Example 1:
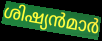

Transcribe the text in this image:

ശിഷ്യൻമാർ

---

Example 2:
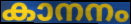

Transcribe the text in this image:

കാനനം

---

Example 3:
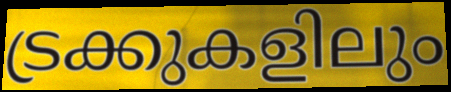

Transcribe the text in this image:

ട്രക്കുകളിലും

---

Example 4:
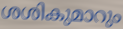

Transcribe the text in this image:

ശശികുമാറും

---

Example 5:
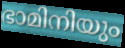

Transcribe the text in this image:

ഭാമിനിയും